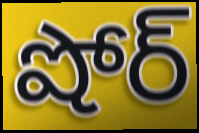
షోర్